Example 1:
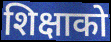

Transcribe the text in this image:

शिक्षाको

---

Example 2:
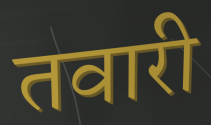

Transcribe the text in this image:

तवारी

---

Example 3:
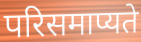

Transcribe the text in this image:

परिसमाप्यते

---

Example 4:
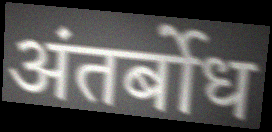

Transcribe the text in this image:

अंतर्बोध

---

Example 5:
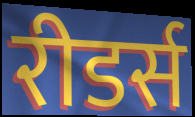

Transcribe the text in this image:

रीडर्स